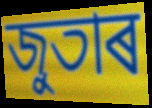
জুতাৰ